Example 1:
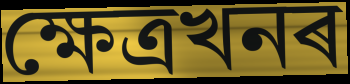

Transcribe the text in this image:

ক্ষেত্ৰখনৰ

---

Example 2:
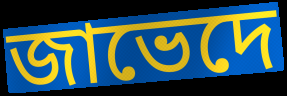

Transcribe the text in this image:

জাভেদে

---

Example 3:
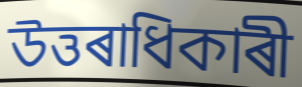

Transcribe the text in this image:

উত্তৰাধিকাৰী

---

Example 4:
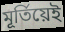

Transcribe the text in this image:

মূৰ্তিয়েই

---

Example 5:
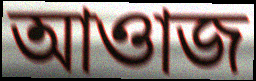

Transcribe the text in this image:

আওাজ